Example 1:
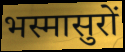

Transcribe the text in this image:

भस्मासुरों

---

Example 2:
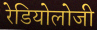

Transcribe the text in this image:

रेडियोलोजी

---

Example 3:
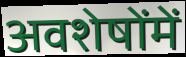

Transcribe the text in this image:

अवशेषोंमें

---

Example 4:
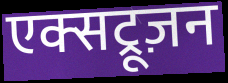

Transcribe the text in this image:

एक्सट्रूज़न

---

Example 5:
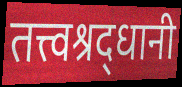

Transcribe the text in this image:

तत्त्वश्रद्धानी